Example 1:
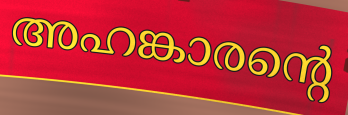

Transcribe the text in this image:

അഹങ്കാരന്റെ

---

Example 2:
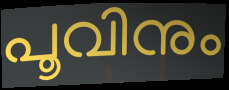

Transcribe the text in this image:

പൂവിനും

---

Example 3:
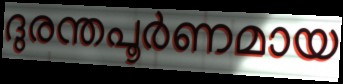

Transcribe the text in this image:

ദുരന്തപൂർണമായ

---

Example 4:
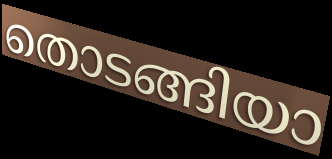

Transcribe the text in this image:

തൊടങ്ങിയാ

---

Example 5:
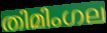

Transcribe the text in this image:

തിമിംഗല